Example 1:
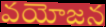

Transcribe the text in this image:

వయోజన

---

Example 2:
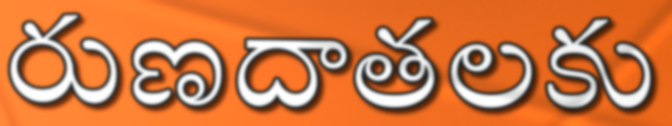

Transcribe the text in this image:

రుణదాతలకు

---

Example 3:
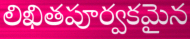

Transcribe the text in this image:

లిఖితపూర్వకమైన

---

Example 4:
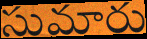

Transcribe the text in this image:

సుమారు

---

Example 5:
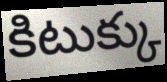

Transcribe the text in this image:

కిటుక్కు